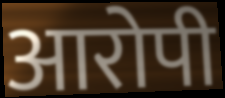
आरोपी